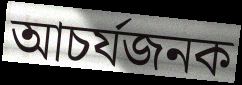
আচৰ্যজনক